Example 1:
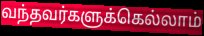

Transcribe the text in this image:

வந்தவர்களுக்கெல்லாம்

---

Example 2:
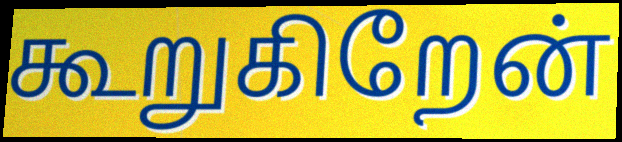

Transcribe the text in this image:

கூறுகிறேன்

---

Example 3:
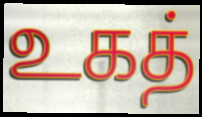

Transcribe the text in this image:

உகத்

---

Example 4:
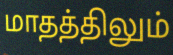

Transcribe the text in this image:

மாதத்திலும்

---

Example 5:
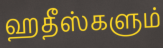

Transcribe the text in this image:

ஹதீஸ்களும்